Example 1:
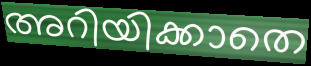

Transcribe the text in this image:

അറിയിക്കാതെ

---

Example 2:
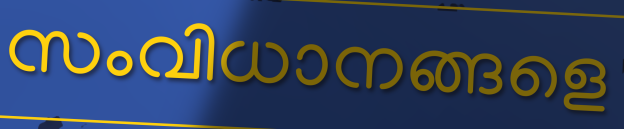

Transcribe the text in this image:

സംവിധാനങ്ങളെ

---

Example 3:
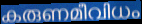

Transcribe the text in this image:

കരുണമീവിധം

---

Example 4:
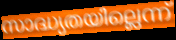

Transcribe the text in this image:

സാദ്ധ്യതയില്ലെന്ന്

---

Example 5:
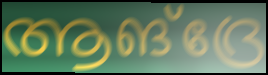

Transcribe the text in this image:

ആങ്ദ്രേ